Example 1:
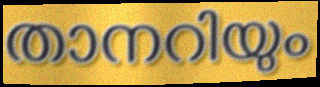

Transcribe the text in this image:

താനറിയും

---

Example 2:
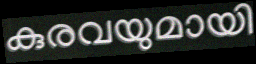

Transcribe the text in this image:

കുരവയുമായി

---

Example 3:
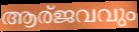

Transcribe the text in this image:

ആര്ജവവും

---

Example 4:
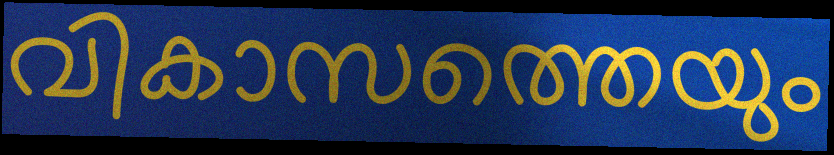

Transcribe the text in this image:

വികാസത്തെയും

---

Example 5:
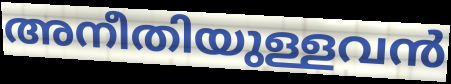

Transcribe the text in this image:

അനീതിയുള്ളവൻ